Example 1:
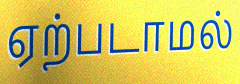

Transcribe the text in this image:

ஏற்படாமல்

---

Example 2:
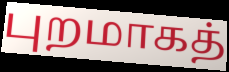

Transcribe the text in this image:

புறமாகத்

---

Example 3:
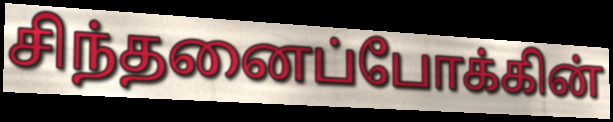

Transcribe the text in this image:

சிந்தனைப்போக்கின்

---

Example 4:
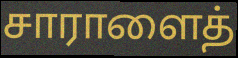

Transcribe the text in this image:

சாராளைத்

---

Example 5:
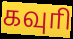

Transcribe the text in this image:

கவுரி